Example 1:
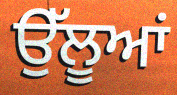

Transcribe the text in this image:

ਉੱਲੂਆਂ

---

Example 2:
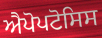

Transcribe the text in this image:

ਐਪੋਪਟੋਸਿਸ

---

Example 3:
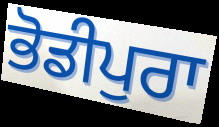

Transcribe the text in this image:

ਭੋਡੀਪੁਰਾ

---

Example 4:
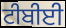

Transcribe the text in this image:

ਟੀਬੀਈ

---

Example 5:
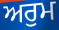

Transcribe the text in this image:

ਅਰੁਮ